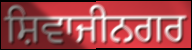
ਸ਼ਿਵਾਜੀਨਗਰ